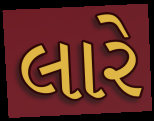
લારે